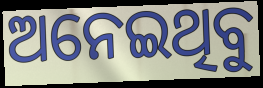
ଅନେଇଥିବୁ